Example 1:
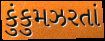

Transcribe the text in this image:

કુંકુમઝરતાં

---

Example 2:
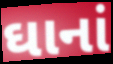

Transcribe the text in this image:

ઘાનાં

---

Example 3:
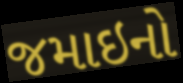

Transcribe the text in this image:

જમાઇનો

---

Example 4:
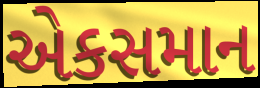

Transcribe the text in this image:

એકસમાન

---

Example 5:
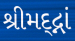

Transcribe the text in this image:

શ્રીમદ્દ્નાં